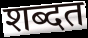
शब्दत